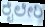
ರೈಲೇರಿ